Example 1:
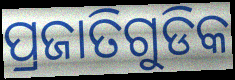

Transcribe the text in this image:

ପ୍ରଜାତିଗୁଡିକ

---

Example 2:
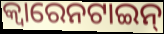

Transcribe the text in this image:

କ୍ୱାରେନଟାଇନ୍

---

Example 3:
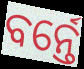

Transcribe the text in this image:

ବର୍ନ୍ତେ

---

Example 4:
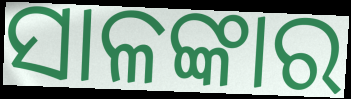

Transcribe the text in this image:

ସାଳଙ୍କାର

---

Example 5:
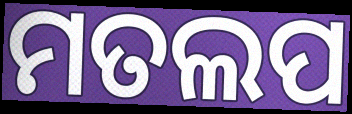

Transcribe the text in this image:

ମତଲପ